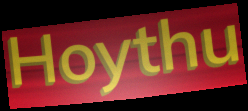
Hoythu